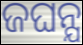
ଜଘନ୍ଯ